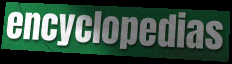
encyclopedias